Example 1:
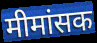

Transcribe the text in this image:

मीमांसक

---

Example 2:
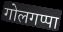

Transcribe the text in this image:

गोलगप्पा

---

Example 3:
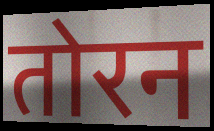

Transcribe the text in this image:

तोरन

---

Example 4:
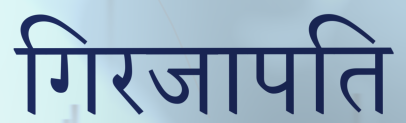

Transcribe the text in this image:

गिरजापति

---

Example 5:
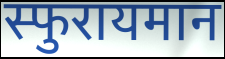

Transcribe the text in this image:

स्फुरायमान